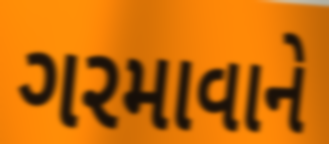
ગરમાવાને